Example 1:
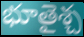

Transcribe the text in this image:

భూతైశ్చ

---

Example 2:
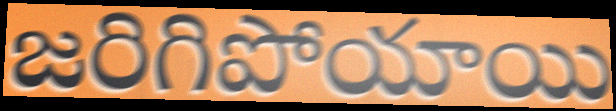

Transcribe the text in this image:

జరిగిపోయాయి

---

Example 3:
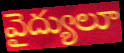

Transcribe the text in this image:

వైద్యులూ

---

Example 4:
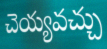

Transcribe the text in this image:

చెయ్యవచ్చు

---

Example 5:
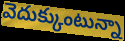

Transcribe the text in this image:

వెదుక్కుంటున్నా